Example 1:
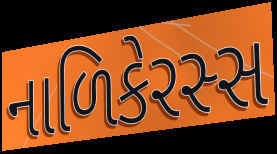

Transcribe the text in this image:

નાળિકેરસ્સ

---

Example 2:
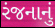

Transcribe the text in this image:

રંજનાનું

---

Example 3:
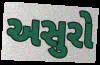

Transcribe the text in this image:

અસુરો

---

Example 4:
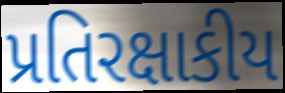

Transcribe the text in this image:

પ્રતિરક્ષાકીય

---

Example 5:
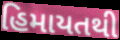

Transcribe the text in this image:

હિમાયતથી